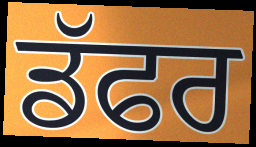
ਡੱਫਰ